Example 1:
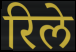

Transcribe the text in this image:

रिले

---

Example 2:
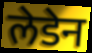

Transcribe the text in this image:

लेडेन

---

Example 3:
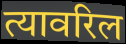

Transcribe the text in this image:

त्यावरिल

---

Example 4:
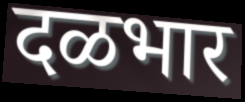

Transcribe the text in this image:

दळभार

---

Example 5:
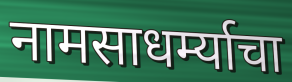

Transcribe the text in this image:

नामसाधर्म्याचा